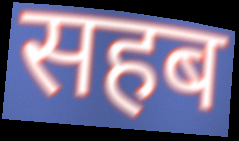
सहब